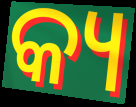
କ୍ୟ